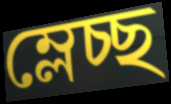
ম্লেচ্ছ